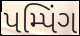
પમ્પિંગ